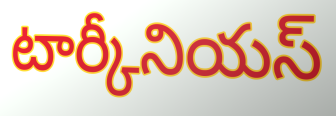
టార్కీనియస్